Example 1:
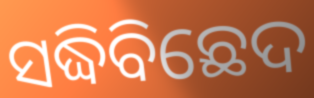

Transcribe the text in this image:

ସଦ୍ଧିବିଛେଦ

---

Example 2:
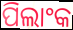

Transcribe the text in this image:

ପିଲାଂକ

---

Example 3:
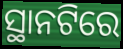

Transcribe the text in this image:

ସ୍ଥାନଟିରେ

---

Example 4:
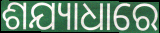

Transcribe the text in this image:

ଶଯ୍ୟାଧାରେ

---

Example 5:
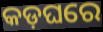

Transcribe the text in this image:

କଡ଼ଘରେ